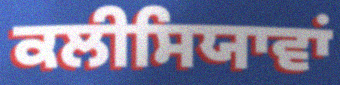
ਕਲੀਸਿਯਾਵਾਂ